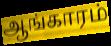
ஆங்காரம்